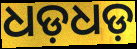
ଧଡ଼ଧଡ଼